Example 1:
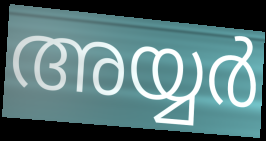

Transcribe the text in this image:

അയ്യർ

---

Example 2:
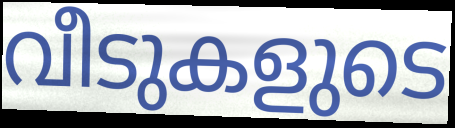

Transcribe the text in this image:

വീടുകളുടെ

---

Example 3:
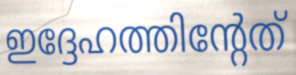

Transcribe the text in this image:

ഇദ്ദേഹത്തിന്റേത്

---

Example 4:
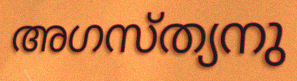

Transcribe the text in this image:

അഗസ്ത്യനു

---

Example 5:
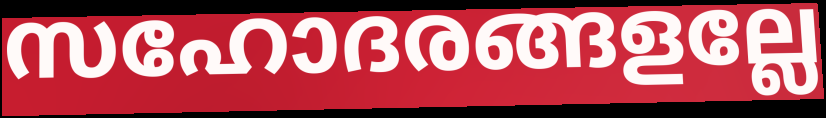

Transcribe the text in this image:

സഹോദരങ്ങളല്ലേ